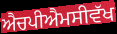
ਐਚਪੀਐਮਸੀਵੱਖ